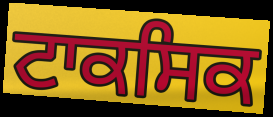
ਟਾਕਸਿਕ